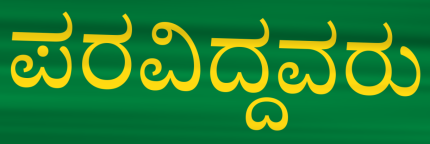
ಪರವಿದ್ದವರು